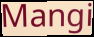
Mangi